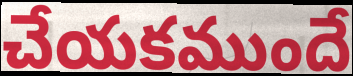
చేయకముందే